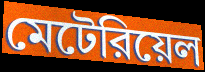
মেটেরিয়েল